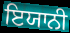
ਇਯਾਨੀ